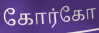
கோர்கோ